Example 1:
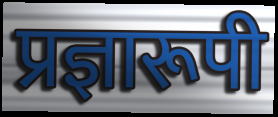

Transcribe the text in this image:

प्रज्ञारूपी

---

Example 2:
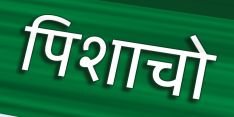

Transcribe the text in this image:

पिशाचो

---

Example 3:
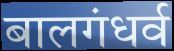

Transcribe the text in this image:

बालगंधर्व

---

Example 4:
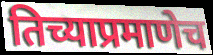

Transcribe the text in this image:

तिच्याप्रमाणेच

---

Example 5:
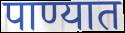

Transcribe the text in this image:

पाण्यात